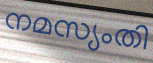
നമസ്യംതി